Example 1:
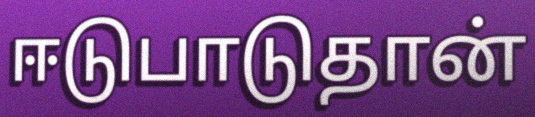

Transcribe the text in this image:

ஈடுபாடுதான்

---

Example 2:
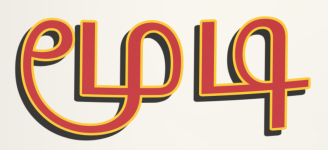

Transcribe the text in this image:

மூடி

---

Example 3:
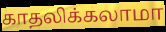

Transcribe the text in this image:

காதலிக்கலாமா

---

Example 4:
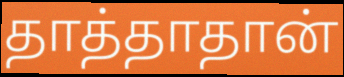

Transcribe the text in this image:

தாத்தாதான்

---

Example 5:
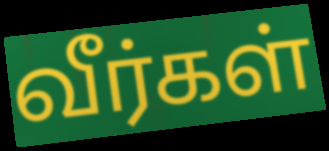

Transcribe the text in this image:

வீர்கள்